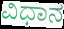
ವಿಧಾನ